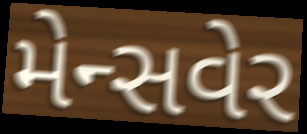
મેન્સવેર